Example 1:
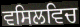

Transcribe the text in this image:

ਵਸਿਲਵਿਚ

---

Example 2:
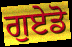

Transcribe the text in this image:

ਗੁਏਡੋ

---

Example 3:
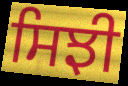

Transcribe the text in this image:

ਸਿਝੀ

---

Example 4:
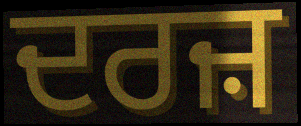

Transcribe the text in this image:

ਦਰਜ਼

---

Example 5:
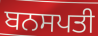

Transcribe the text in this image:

ਬਨਸਪਤੀ